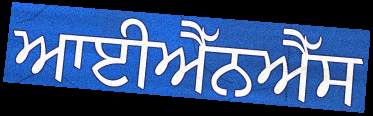
ਆਈਐੱਨਐੱਸ